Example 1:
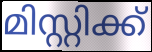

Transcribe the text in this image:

മിസ്റ്റിക്ക്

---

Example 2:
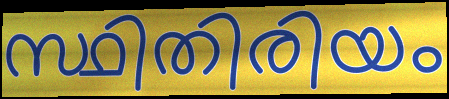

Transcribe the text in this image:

സ്ഥിതിരിയം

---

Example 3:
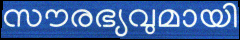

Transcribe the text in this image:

സൗരഭ്യവുമായി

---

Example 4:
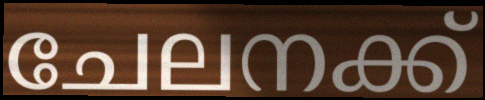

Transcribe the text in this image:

ചേലനക്ക്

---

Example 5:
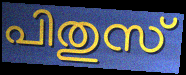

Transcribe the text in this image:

പിതുസ്